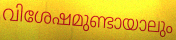
വിശേഷമുണ്ടായാലും